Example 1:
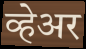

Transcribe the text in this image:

व्हेअर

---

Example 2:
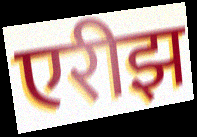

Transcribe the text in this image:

एरीझ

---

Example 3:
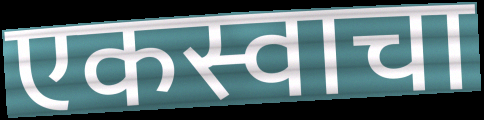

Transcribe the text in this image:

एकस्वाचा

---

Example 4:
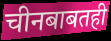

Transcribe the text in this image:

चीनबाबतही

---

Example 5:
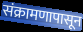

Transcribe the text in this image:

संक्रामणापासून